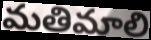
మతిమాలి